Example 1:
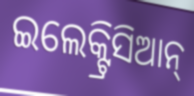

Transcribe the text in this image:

ଇଲେକ୍ଟ୍ରିସିଆନ୍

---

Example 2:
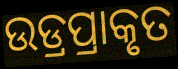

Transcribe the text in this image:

ଉଡ୍ରପ୍ରାକୃତ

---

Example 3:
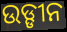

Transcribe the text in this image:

ଉଡ୍ଡୀନ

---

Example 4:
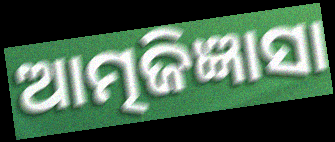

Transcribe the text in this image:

ଆତ୍ମଜିଜ୍ଞାସା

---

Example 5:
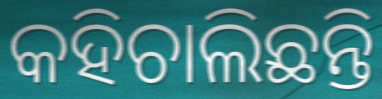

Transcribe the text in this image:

କହିଚାଲିଛନ୍ତି